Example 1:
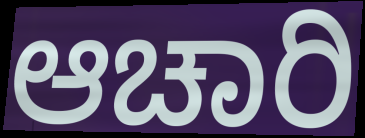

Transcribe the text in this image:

ಆಚಾರಿ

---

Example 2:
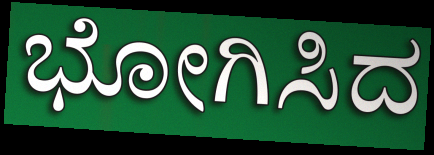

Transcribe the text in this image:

ಭೋಗಿಸಿದ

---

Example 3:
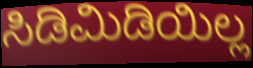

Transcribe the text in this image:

ಸಿಡಿಮಿಡಿಯಿಲ್ಲ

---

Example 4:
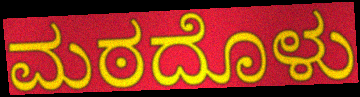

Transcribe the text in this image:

ಮಠದೊಳು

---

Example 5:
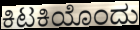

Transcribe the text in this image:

ಕಿಟಕಿಯೊಂದು